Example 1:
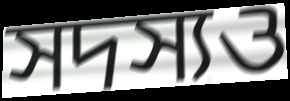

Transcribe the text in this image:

সদস্যও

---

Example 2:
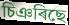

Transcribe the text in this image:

চিঞৰিছে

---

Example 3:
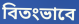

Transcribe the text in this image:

বিতংভাবে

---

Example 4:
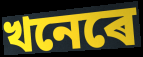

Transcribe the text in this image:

খনেৰে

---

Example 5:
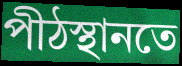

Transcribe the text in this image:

পীঠস্থানতে